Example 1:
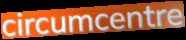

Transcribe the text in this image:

circumcentre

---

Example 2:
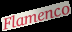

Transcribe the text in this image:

Flamenco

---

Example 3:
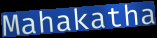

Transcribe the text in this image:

Mahakatha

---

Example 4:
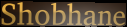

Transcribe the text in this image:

Shobhane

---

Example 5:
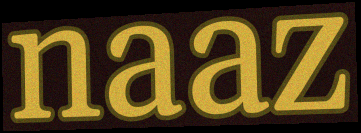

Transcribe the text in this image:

naaz